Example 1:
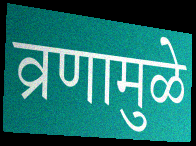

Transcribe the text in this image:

व्रणामुळे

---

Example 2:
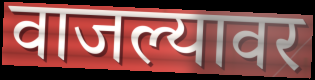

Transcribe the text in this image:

वाजल्यावर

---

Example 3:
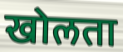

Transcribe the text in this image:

खोलता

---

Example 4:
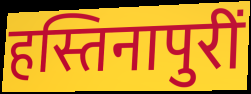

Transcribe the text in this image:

हस्तिनापुरीं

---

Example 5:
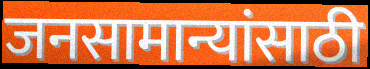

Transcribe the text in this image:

जनसामान्यांसाठी